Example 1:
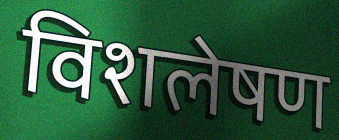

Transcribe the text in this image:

विशलेषण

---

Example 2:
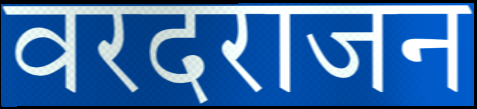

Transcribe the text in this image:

वरदराजन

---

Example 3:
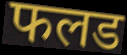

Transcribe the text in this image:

फलड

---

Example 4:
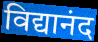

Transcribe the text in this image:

विद्यानंद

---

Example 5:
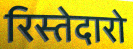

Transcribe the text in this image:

रिस्तेदारो